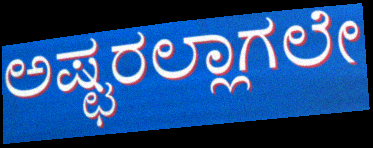
ಅಷ್ಟರಲ್ಲಾಗಲೇ